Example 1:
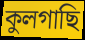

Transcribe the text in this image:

কুলগাছি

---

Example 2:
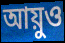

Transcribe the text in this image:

আয়ুও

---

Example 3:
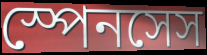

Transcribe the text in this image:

স্পেনসেস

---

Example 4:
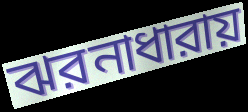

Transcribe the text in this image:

ঝরনাধারায়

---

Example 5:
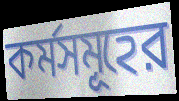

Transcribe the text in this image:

কর্মসমূহের